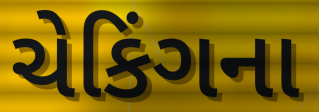
ચેકિંગના